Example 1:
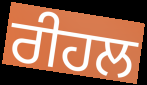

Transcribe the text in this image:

ਰੀਹਲ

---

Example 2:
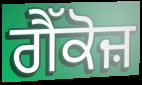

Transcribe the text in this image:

ਗੈੱਕੋਜ਼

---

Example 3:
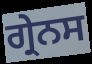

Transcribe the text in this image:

ਗ੍ਰੇਨਸ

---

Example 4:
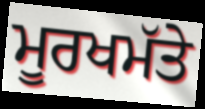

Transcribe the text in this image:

ਮੂਰਖਮੱਤੇ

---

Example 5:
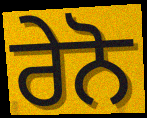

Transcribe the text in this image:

ਰੇਨੋ